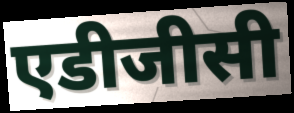
एडीजीसी